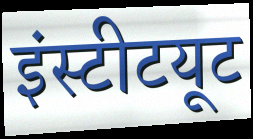
इंस्टीटयूट